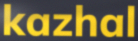
kazhal